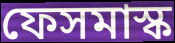
ফেসমাস্ক